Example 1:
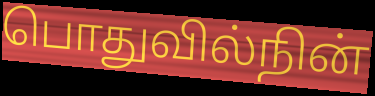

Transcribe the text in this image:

பொதுவில்நின்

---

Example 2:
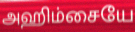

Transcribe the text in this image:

அஹிம்சையே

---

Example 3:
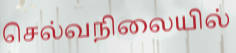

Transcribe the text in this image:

செல்வநிலையில்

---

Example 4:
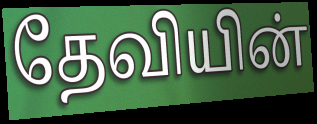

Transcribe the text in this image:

தேவியின்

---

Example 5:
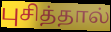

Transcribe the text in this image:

புசித்தால்